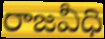
రాజవీధి